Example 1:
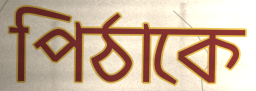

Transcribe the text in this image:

পিঠাকে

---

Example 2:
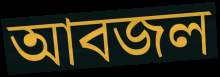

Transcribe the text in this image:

আবজল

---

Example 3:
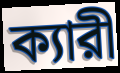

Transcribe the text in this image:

ক্যারী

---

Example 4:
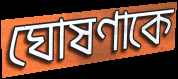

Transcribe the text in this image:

ঘোষণাকে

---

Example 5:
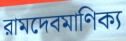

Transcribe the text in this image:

রামদেবমাণিক্য